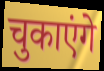
चुकाएंगे